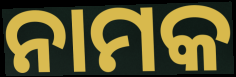
ନାମକ